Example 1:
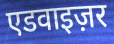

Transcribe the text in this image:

एडवाइज़र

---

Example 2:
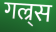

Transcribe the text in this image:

गल्र्स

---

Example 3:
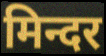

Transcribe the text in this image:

मिन्दर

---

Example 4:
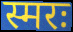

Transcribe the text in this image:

स्मरः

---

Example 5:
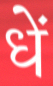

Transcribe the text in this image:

धें